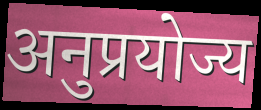
अनुप्रयोज्य